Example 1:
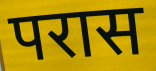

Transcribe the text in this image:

परास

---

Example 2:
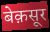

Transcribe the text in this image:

बेक़सूर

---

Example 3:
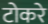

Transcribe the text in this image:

टोकरे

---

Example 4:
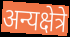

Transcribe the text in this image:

अन्यक्षेत्रे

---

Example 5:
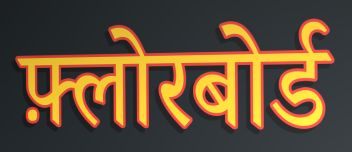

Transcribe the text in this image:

फ़्लोरबोर्ड